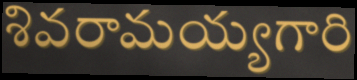
శివరామయ్యగారి